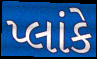
પ્લાંકે